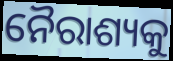
ନୈରାଶ୍ୟକୁ